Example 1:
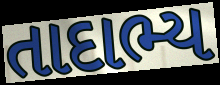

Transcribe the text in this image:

તાદાભ્ય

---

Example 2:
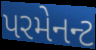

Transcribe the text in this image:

પરમેનન્ટ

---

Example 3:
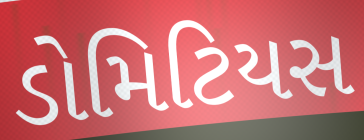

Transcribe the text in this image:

ડોમિટિયસ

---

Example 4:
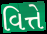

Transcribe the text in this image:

વિત્તે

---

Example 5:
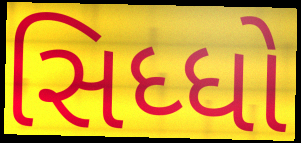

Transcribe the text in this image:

સિધ્ધો